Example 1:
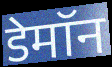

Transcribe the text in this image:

डेमॉन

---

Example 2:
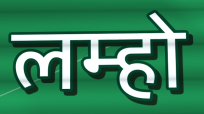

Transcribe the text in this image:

लम्हो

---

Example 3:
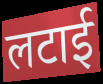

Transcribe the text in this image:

लटाई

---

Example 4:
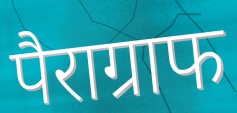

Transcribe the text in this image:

पैराग्राफ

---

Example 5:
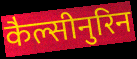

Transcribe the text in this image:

कैल्सीनुरिन